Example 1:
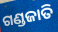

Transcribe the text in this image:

ଗଣ୍ଡଜାତି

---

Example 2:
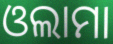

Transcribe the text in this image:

ଓଲାମା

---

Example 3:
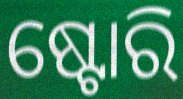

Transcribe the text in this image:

ଷ୍ଟୋରି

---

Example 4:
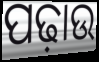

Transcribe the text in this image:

ପଢ଼ାଉ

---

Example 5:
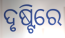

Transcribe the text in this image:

ଦୃଷ୍ଟିରେ